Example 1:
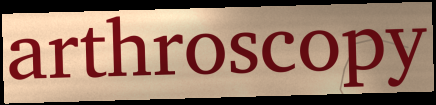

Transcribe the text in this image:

arthroscopy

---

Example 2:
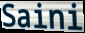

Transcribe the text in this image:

Saini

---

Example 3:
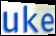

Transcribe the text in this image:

uke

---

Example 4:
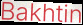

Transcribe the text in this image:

Bakhtin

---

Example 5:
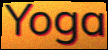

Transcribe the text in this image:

Yoga